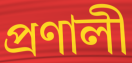
প্ৰণালী